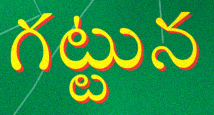
గట్టున